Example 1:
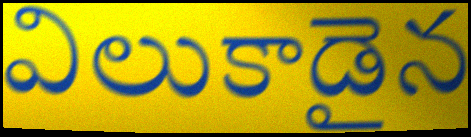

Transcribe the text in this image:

విలుకాడైన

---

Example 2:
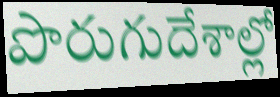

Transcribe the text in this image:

పొరుగుదేశాల్లో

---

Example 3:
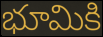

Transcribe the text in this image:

భూమికి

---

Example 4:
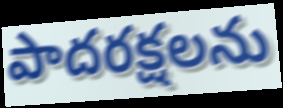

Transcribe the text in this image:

పాదరక్షలను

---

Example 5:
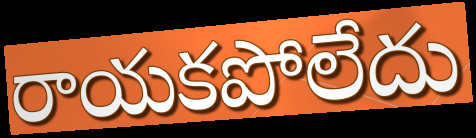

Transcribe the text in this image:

రాయకపోలేదు